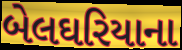
બેલઘરિયાના